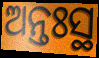
ଅନ୍ତଃସ୍ଥ